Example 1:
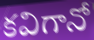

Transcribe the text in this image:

కవిగానో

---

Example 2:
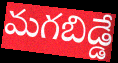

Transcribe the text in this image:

మగబిడ్డే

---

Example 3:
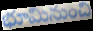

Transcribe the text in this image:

భూమినుంచి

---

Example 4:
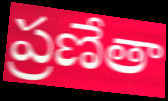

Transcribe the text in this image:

ప్రణేతా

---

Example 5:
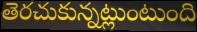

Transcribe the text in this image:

తెరచుకున్నట్లుంటుంది